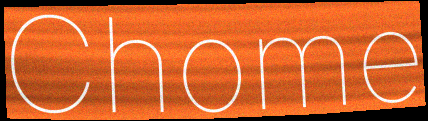
Chome